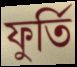
ফুৰ্তি